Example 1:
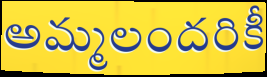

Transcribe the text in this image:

అమ్మలందరికీ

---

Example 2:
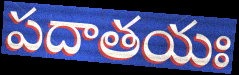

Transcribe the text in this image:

పదాతయః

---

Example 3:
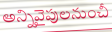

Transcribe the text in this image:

అన్నివైపులనుంచీ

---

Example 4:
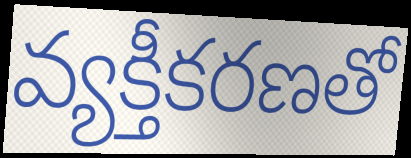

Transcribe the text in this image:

వ్యక్తీకరణతో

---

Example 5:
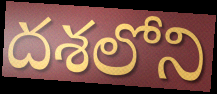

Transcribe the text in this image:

దశలోని